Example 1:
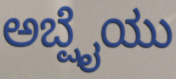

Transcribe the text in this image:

ಅಬ್ಷೈಯು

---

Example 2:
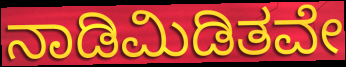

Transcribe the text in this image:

ನಾಡಿಮಿಡಿತವೇ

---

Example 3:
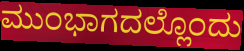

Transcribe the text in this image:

ಮುಂಭಾಗದಲ್ಲೊಂದು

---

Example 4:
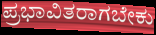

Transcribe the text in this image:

ಪ್ರಭಾವಿತರಾಗಬೇಕು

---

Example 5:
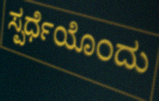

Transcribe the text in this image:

ಸ್ಪರ್ಧೆಯೊಂದು